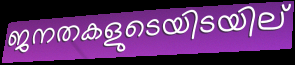
ജനതകളുടെയിടയില്